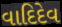
વાદિદેવ